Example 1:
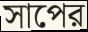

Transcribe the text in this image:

সাপের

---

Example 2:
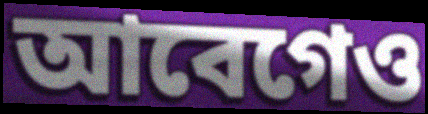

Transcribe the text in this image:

আবেগেও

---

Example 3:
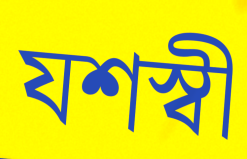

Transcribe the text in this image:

যশস্বী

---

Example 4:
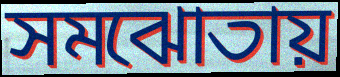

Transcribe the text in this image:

সমঝোতায়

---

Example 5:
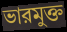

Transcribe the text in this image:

ভারমুক্ত